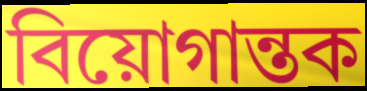
বিয়োগান্তক